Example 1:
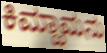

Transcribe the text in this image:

ಕಿಮ್ಹಾಮನು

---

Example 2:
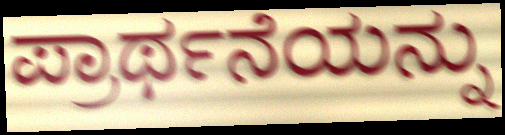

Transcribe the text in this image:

ಪ್ರಾರ್ಥನೆಯನ್ನು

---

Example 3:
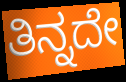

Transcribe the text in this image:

ತಿನ್ನದೇ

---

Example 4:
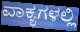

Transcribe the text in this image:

ವಾಕ್ಯಗಳಲ್ಲಿ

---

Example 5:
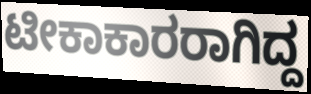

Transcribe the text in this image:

ಟೀಕಾಕಾರರಾಗಿದ್ದ